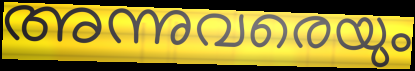
അന്നുവരെയും